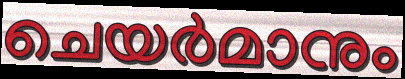
ചെയർമാനും